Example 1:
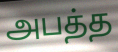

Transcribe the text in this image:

அபத்த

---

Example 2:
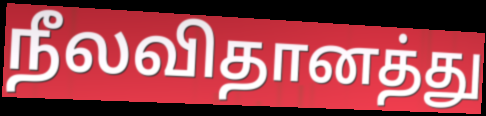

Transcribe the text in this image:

நீலவிதானத்து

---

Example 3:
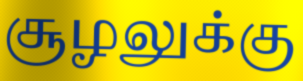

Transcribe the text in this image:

சூழலுக்கு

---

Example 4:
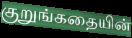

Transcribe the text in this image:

குறுங்கதையின்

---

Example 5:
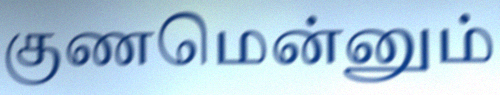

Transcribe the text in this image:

குணமென்னும்